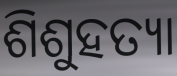
ଶିଶୁହତ୍ୟା